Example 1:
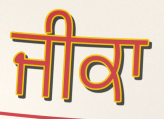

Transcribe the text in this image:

ਜੀਕਾ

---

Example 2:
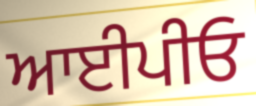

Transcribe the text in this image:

ਆਈਪੀਓ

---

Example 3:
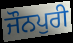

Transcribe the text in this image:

ਜੌਨਪੁਰੀ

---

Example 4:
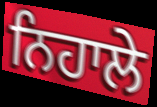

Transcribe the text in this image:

ਨਿਹਾਲੇ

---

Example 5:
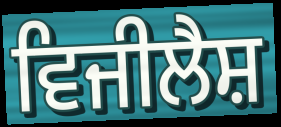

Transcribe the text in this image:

ਵਿਜੀਲੈਸ਼